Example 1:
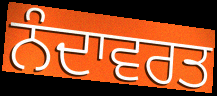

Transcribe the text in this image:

ਨੰਦਾਵਰਤ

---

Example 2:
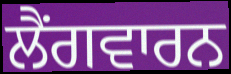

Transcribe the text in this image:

ਲੈਂਗਵਾਰਨ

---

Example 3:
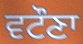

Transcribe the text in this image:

ਵਟੌਣਾ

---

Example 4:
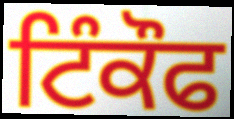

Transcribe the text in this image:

ਟਿੰਕੌਫ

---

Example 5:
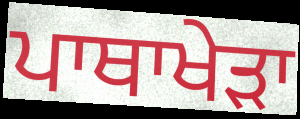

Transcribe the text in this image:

ਪਾਥਾਖੇੜਾ